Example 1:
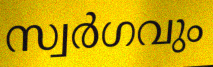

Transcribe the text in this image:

സ്വർഗവും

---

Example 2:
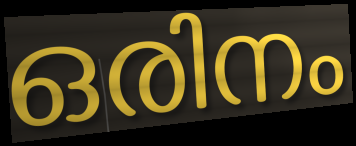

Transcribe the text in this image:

ഒരിനം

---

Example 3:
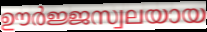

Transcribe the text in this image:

ഊർജ്ജസ്വലയായ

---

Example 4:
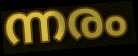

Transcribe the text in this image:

ന്നരം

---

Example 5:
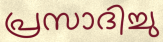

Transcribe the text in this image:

പ്രസാദിച്ചു